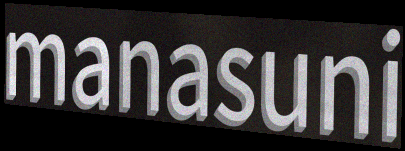
manasuni